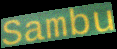
Sambu